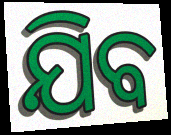
ଯିବ